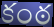
కంఠ